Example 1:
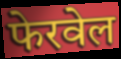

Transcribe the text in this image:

फेरवेल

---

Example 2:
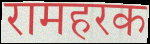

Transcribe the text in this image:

रामहरक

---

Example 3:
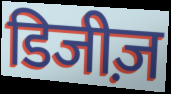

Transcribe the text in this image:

डिजीज़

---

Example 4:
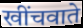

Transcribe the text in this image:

खींचवाते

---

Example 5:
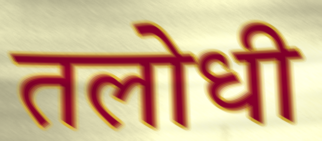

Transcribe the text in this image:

तलोधी